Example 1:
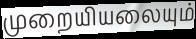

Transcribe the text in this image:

முறையியலையும்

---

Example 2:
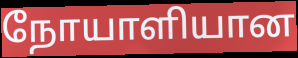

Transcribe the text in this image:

நோயாளியான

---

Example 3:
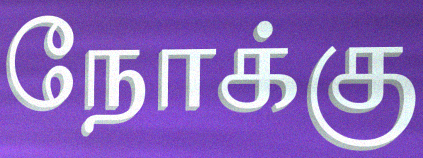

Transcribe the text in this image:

நோக்கு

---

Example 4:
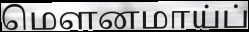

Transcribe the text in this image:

மௌனமாய்ப்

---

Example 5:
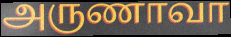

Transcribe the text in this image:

அருணாவா